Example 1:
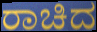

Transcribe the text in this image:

ರಾಚಿದ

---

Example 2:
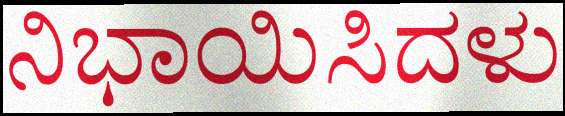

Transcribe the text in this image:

ನಿಭಾಯಿಸಿದಳು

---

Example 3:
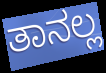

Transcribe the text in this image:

ತಾನಲ್ಲ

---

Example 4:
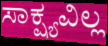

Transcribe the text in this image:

ಸಾಕ್ಷ್ಯವಿಲ್ಲ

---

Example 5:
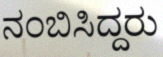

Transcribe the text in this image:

ನಂಬಿಸಿದ್ದರು